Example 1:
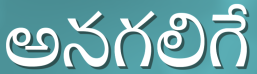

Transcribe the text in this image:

అనగలిగే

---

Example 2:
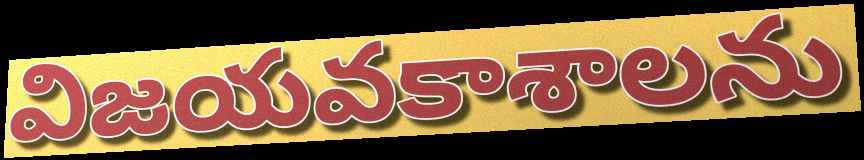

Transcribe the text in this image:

విజయవకాశాలను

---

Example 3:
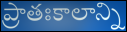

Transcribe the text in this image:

ప్రాతఃకాలాన్ని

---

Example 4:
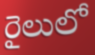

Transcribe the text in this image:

రైలులో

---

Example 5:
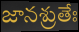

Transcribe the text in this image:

జానశ్రుతేః